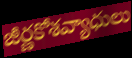
జీర్ణకోశవ్యాధులు